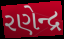
રણેન્દ્ર